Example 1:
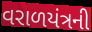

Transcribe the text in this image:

વરાળયંત્રની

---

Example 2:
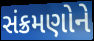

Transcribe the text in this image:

સંક્રમણોને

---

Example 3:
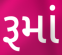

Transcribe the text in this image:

રૂમાં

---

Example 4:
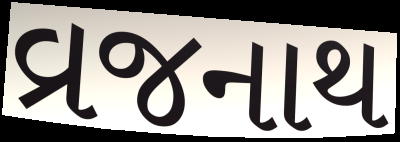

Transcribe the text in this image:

વ્રજનાથ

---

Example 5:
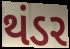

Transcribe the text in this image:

થંડર